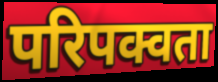
परिपक्वता